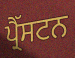
ਪ੍ਰੈੱਸਟਨ